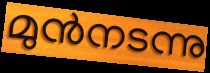
മുൻനടന്നു